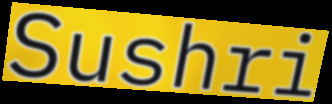
Sushri